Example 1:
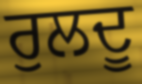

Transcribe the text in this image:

ਰੁਲਦੂ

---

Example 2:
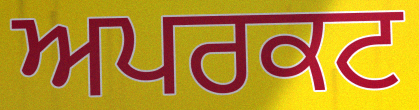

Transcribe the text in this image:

ਅਪਰਕਟ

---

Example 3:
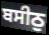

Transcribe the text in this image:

ਬਸੀਠੁ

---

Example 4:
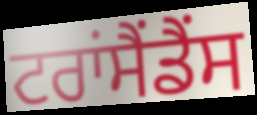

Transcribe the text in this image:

ਟਰਾਂਸੈਂਡੈਂਸ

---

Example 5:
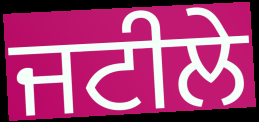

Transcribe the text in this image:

ਜਟੀਲੇ